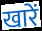
खारें